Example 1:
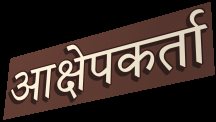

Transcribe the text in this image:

आक्षेपकर्ता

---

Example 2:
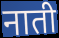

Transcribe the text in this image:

नाती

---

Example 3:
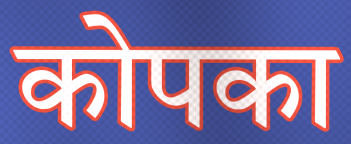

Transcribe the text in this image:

कोपका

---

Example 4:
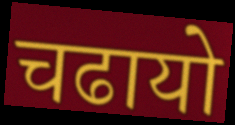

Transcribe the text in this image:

चढायो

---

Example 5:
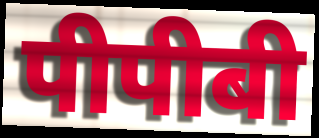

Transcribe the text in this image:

पीपीबी